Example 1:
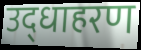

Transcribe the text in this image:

उद्धाहरण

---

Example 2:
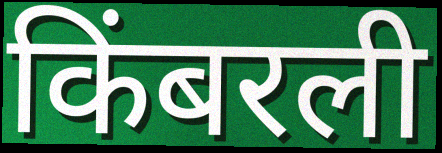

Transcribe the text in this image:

किंबरली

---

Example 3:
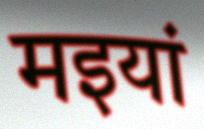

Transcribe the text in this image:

मइयां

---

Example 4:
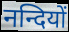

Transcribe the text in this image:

नन्दियों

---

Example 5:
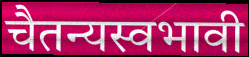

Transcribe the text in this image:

चैतन्यस्वभावी